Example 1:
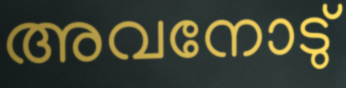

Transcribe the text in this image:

അവനോടു്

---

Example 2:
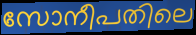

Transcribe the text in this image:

സോനീപതിലെ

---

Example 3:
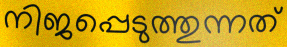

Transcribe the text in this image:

നിജപ്പെടുത്തുന്നത്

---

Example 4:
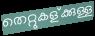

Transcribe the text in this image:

തെറ്റുകള്ക്കുള്ള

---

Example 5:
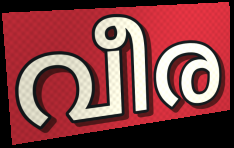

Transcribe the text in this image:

വീര